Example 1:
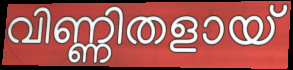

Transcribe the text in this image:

വിണ്ണിതളായ്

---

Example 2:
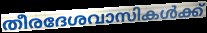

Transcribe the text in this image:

തീരദേശവാസികൾക്ക്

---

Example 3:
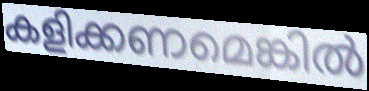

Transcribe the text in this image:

കളിക്കണമെങ്കിൽ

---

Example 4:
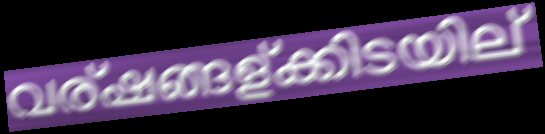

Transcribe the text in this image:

വര്ഷങ്ങള്ക്കിടയില്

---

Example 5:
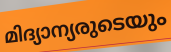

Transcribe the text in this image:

മിദ്യാന്യരുടെയും